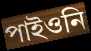
পাইওনি